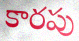
కారపు